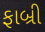
ફાબ્રી